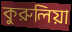
কুরুলিয়া